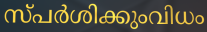
സ്പർശിക്കുംവിധം